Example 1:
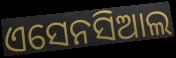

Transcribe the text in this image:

ଏସେନସିଆଲ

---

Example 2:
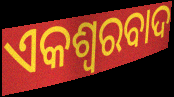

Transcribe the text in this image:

ଏକଶ୍ୱରବାଦ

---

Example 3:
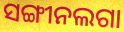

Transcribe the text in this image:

ସଙ୍ଗୀନଲଗା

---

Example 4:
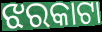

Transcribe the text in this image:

ଝରକାଟା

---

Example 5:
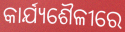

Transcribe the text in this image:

କାର୍ଯ୍ୟଶୈଳୀରେ